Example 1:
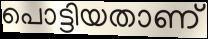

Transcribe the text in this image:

പൊട്ടിയതാണ്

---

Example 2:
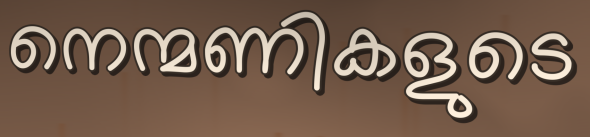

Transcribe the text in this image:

നെന്മണികളുടെ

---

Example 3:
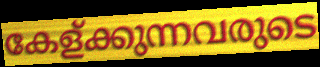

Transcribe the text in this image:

കേള്ക്കുന്നവരുടെ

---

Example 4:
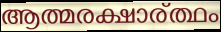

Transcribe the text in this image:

ആത്മരക്ഷാര്ത്ഥം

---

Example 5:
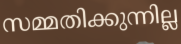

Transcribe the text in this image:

സമ്മതിക്കുന്നില്ല